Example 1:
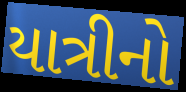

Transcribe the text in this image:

યાત્રીનો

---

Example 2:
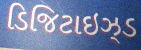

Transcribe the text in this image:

ડિજિટાઇઝ્ડ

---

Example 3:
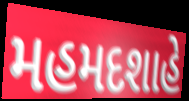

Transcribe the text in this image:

મહમદશાહે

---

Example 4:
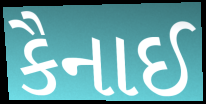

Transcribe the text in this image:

કૈનાઈ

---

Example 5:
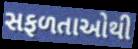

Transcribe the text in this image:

સફળતાઓથી